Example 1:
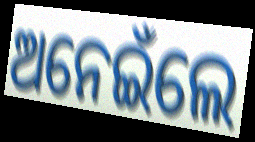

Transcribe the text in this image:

ଅନେଇଁଲେ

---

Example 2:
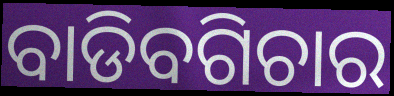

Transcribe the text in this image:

ବାଡିବଗିଚାର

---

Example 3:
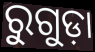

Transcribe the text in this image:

ରୁଗୁଡ଼ା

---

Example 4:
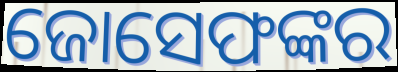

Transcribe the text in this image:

ଜୋସେଫଙ୍କର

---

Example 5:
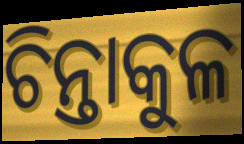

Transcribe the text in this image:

ଚିନ୍ତାକୁଳ